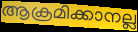
ആക്രമിക്കാനല്ല